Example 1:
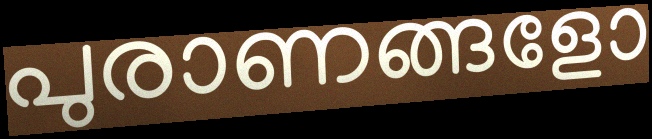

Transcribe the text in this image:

പുരാണങ്ങളോ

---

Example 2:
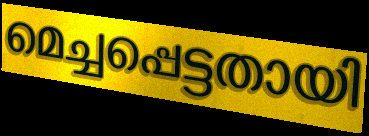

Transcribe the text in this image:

മെച്ചപ്പെട്ടതായി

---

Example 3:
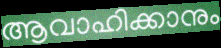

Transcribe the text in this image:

ആവാഹിക്കാനും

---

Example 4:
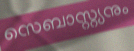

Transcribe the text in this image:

സെബാസ്റ്റ്യനും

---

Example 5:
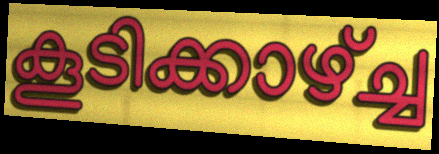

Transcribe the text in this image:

കൂടിക്കാഴ്ച്ച